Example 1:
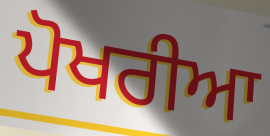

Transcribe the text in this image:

ਪੋਖਰੀਆ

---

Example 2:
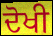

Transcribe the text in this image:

ਦੋਖੀ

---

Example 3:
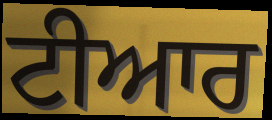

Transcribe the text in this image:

ਟੀਆਰ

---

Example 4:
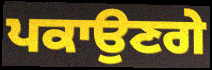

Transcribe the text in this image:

ਪਕਾਉਣਗੇ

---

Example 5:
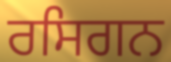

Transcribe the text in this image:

ਰਸਿਗਨ